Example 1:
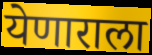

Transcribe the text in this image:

येणाराला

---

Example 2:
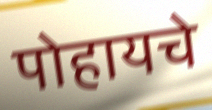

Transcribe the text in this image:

पोहायचे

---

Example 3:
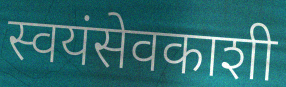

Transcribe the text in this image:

स्वयंसेवकाशी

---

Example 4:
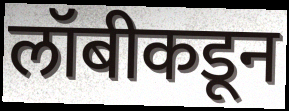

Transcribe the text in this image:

लॉबीकडून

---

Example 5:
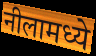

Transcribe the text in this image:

नीलामध्ये